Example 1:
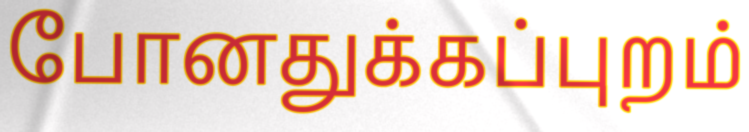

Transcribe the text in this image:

போனதுக்கப்புறம்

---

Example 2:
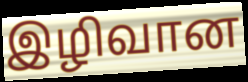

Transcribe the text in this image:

இழிவான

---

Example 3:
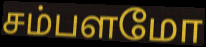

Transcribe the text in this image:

சம்பளமோ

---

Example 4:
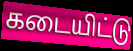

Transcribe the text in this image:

கடையிட்டு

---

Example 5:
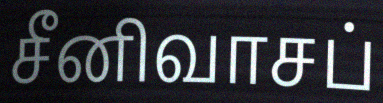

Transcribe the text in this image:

சீனிவாசப்